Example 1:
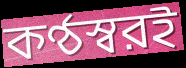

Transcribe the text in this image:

কণ্ঠস্বরই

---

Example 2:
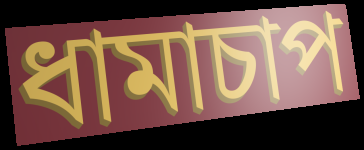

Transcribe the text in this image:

ধামাচাপ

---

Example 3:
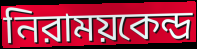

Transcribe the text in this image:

নিরাময়কেন্দ্র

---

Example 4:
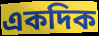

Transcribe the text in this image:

একদিক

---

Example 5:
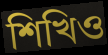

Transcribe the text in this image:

শিখিও